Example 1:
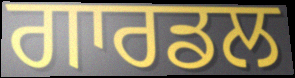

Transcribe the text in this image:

ਗਾਰਡਲ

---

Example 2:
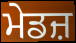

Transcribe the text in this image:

ਮੇਡਜ਼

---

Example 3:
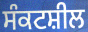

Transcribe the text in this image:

ਸੰਕਟਸ਼ੀਲ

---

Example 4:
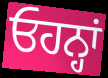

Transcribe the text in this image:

ਓਹਨ੍ਹਾਂ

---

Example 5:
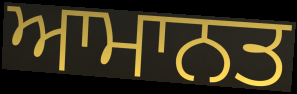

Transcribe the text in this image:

ਆਮਾਨਤ